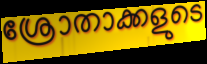
ശ്രോതാക്കളുടെ